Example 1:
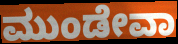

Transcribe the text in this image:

ಮುಂಡೇವಾ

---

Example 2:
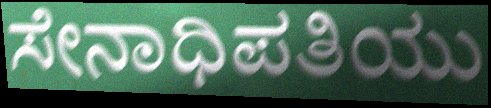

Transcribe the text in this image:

ಸೇನಾಧಿಪತಿಯು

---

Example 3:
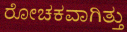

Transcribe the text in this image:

ರೋಚಕವಾಗಿತ್ತು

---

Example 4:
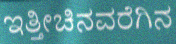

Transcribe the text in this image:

ಇತ್ತೀಚಿನವರೆಗಿನ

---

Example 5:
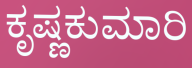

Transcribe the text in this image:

ಕೃಷ್ಣಕುಮಾರಿ